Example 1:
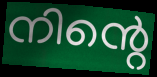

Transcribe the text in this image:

നിന്റെ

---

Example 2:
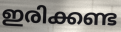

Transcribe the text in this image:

ഇരിക്കണ്ട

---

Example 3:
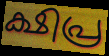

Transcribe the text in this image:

ക്ഷിപ്ര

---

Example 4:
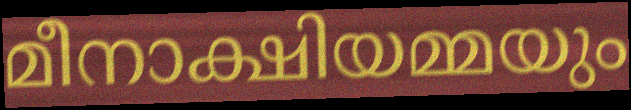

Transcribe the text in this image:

മീനാക്ഷിയമ്മയും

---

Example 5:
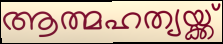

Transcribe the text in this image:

ആത്മഹത്യയ്ക്ക്